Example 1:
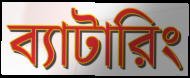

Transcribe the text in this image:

ব্যাটারিং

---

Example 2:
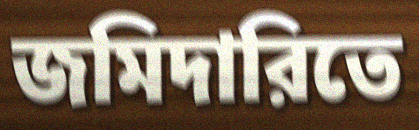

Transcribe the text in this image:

জমিদারিতে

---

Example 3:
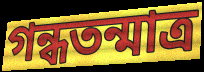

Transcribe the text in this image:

গন্ধতন্মাত্র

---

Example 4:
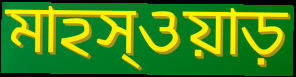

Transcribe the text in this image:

মাহস্ওয়াড়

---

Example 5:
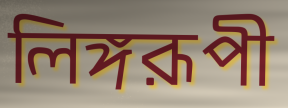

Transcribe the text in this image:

লিঙ্গরূপী